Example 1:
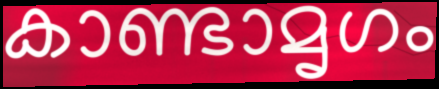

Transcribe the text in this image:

കാണ്ടാമൃഗം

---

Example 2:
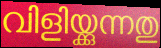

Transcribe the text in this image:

വിളിയ്ക്കുന്നതു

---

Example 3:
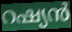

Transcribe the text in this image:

റഷ്യൻ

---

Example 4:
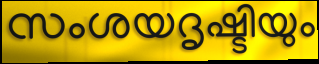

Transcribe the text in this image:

സംശയദൃഷ്ടിയും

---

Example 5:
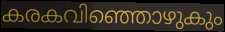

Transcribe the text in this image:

കരകവിഞ്ഞൊഴുകും